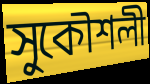
সুকৌশলী